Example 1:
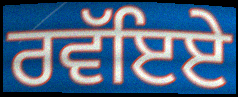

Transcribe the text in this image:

ਰਵੱਇਏ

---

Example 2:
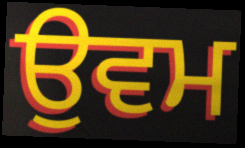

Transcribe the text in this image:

ਉਵਮ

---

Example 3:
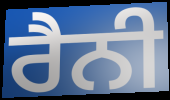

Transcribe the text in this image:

ਰੈਨੀ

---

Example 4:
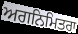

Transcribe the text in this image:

ਅਗਨਿਮਿਤਰਾ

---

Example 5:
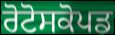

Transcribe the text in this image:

ਰੋਟੋਸਕੋਪਡ